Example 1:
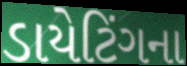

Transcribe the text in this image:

ડાયેટિંગના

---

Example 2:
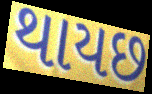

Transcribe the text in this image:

થાયછ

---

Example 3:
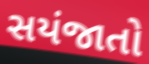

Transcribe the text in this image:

સયંજાતો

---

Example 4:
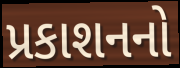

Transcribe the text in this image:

પ્રકાશનનો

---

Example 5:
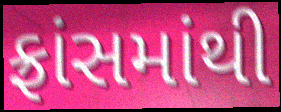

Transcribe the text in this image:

ફ્રાંસમાંથી